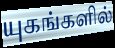
யுகங்களில்